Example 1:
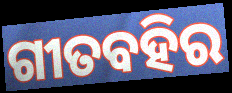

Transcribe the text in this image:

ଗୀତବହିର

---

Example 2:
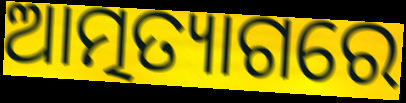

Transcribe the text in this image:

ଆତ୍ମତ୍ୟାଗରେ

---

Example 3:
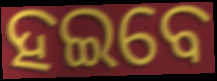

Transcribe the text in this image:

ହଇବେ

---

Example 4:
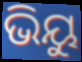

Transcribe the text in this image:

ଭିୟୁ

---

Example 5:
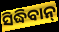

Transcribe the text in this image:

ସିଦ୍ଧିବାନ୍